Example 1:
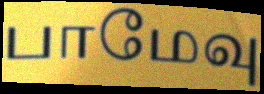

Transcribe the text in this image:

பாமேவு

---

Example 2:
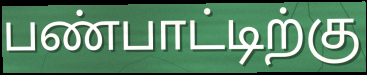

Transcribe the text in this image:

பண்பாட்டிற்கு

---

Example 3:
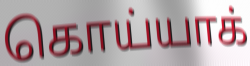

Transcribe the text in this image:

கொய்யாக்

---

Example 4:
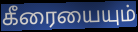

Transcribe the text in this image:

கீரையையும்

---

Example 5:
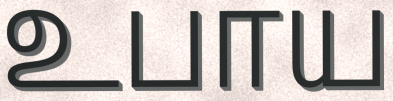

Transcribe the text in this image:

உபாய